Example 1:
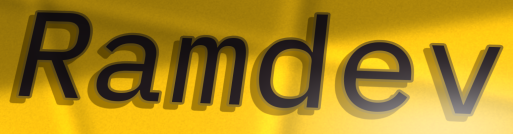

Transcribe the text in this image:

Ramdev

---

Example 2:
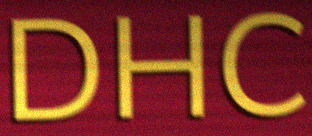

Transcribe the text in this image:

DHC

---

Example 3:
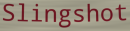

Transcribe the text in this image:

Slingshot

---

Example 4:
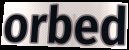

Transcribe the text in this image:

orbed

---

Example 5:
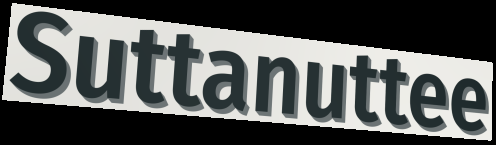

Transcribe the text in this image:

Suttanuttee